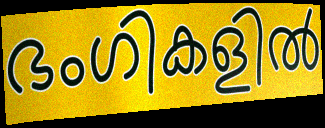
ഭംഗികളിൽ